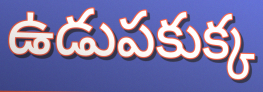
ఉడుపకుక్క